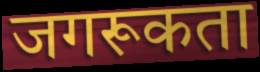
जगरूकता